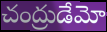
చంద్రుడేమో